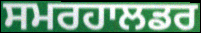
ਸਮਰਹਾਲਡਰ